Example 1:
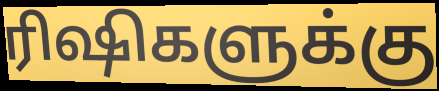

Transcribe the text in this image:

ரிஷிகளுக்கு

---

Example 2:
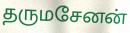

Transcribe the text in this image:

தருமசேனன்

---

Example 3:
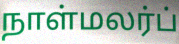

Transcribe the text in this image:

நாள்மலர்ப்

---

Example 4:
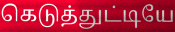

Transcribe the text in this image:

கெடுத்துட்டியே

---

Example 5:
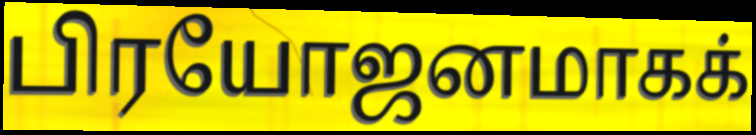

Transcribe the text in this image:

பிரயோஜனமாகக்